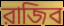
রাজিব